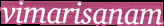
vimarisanam